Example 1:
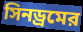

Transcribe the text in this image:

সিনড্রমের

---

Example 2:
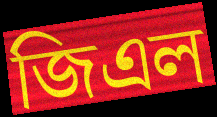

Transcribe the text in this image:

জিএল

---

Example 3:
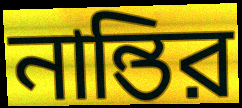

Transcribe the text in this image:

নান্তির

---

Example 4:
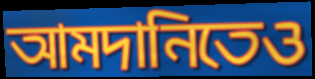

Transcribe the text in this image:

আমদানিতেও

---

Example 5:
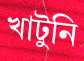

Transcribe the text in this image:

খাটুনি